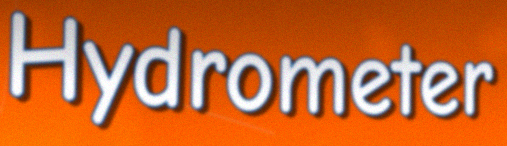
Hydrometer